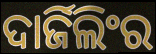
ଦାର୍ଜିଲିଂର